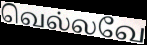
வெல்லவே